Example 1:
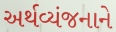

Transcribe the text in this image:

અર્થવ્યંજનાને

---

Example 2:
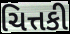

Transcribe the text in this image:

ચિત્તકી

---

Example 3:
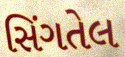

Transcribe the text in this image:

સિંગતેલ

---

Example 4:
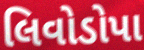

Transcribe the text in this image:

લિવોડોપા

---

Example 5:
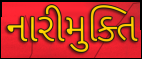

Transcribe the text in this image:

નારીમુક્તિ